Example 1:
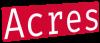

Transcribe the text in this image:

Acres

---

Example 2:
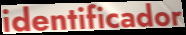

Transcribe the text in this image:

identificador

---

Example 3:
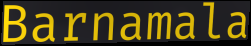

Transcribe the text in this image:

Barnamala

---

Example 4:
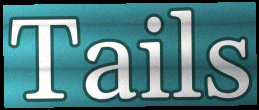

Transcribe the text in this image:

Tails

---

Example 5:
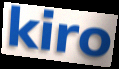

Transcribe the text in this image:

kiro